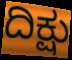
ದಿಕ್ಷು